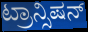
ಟ್ರಾನ್ಸಿಷನ್